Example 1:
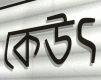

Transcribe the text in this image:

কেউৎ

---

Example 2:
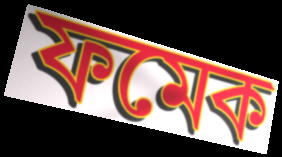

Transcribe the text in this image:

ফমেক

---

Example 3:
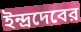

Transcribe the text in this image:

ইন্দ্রদেবের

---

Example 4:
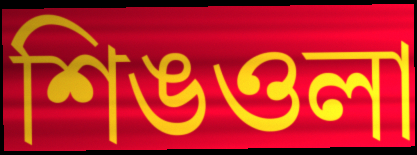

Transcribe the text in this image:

শিঙওলা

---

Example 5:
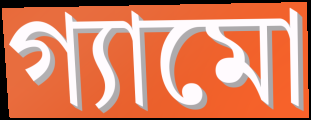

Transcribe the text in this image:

গ্যামো